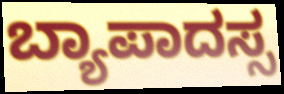
ಬ್ಯಾಪಾದಸ್ಸ